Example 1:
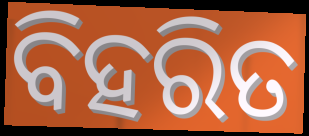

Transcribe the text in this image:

ବିହରିତ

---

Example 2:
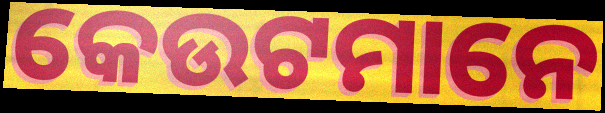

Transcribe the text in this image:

କେଉଟମାନେ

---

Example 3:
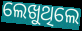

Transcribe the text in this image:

ଲେଖୁଥିଲେ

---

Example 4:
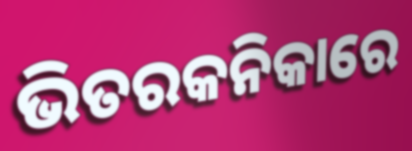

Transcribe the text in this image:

ଭିତରକନିକାରେ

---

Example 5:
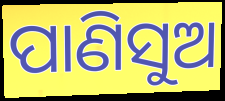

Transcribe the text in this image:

ପାଣିସୁଅ